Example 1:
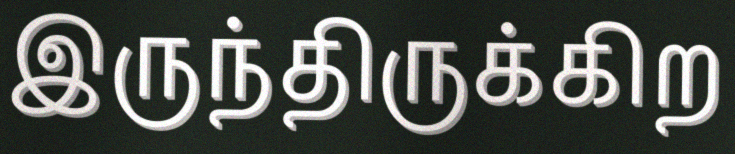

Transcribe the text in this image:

இருந்திருக்கிற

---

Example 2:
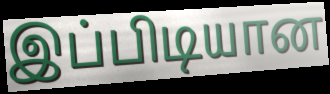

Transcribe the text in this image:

இப்பிடியான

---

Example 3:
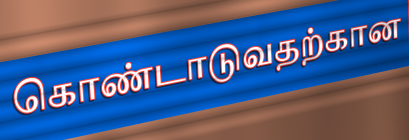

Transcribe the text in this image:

கொண்டாடுவதற்கான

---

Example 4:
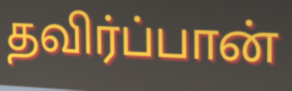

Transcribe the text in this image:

தவிர்ப்பான்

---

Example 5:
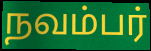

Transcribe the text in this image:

நவம்பர்